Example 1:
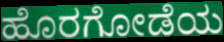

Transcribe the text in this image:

ಹೊರಗೋಡೆಯ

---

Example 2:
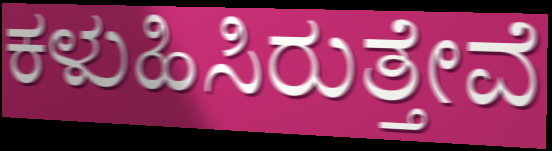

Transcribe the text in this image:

ಕಳುಹಿಸಿರುತ್ತೇವೆ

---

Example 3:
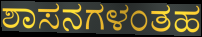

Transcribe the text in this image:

ಶಾಸನಗಳಂತಹ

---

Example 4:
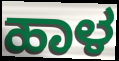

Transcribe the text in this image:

ಹಾಳ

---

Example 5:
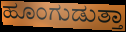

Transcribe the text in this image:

ಹೂಂಗುಡುತ್ತಾ